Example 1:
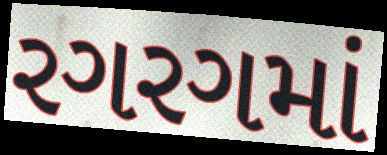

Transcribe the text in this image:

રગરગમાં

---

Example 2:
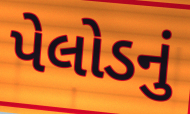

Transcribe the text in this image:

પેલોડનું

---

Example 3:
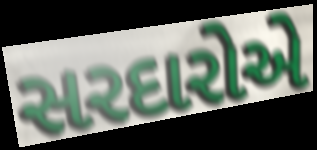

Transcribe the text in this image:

સરદારોએ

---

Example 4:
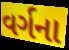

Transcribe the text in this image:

વર્ગના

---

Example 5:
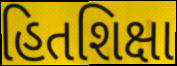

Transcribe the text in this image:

હિતશિક્ષા